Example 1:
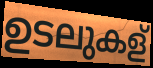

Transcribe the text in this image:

ഉടലുകള്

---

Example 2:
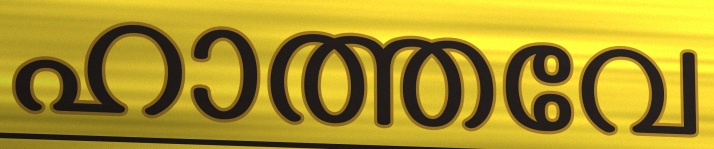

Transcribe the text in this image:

ഹാത്തവേ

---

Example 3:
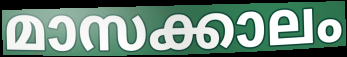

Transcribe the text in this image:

മാസക്കാലം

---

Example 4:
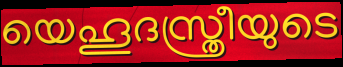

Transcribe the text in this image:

യെഹൂദസ്ത്രീയുടെ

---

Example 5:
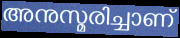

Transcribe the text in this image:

അനുസ്മരിച്ചാണ്